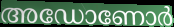
അഡോണോർ